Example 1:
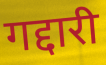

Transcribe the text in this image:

गद्दारी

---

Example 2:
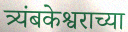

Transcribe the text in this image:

त्र्यंबकेश्वराच्या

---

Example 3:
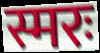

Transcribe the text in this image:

स्मरः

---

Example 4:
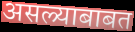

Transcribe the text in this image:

असल्याबाबत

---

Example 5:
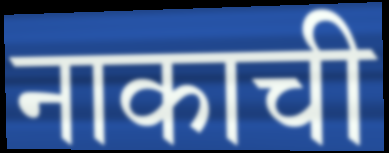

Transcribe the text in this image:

नाकाची